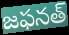
జఫనత్